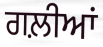
ਗਲ਼ੀਆਂ